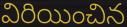
విరియించిన